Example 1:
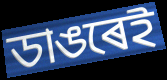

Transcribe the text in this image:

ডাঙৰেই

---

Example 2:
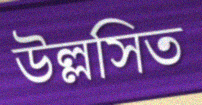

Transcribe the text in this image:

উল্লসিত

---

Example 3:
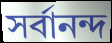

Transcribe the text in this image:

সৰ্বানন্দ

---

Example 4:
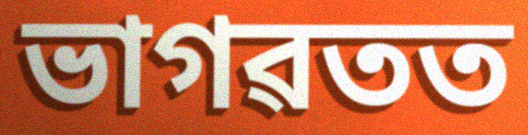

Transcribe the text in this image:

ভাগৱতত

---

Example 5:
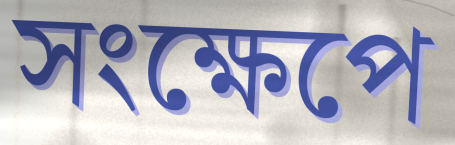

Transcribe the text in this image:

সংক্ষেপে